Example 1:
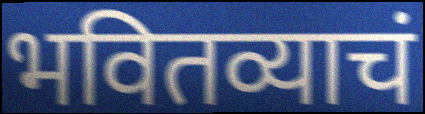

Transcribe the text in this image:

भवितव्याचं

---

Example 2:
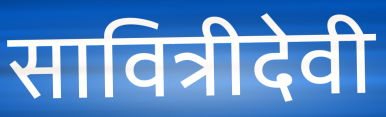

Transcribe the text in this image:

सावित्रीदेवी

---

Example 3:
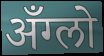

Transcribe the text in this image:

अँग्लो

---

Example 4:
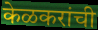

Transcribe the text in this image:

केळकरांची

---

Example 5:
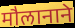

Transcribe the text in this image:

मौलानाने